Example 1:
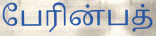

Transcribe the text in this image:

பேரின்பத்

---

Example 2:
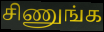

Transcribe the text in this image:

சிணுங்க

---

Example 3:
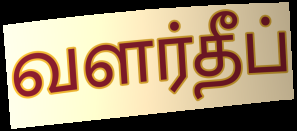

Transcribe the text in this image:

வளர்தீப்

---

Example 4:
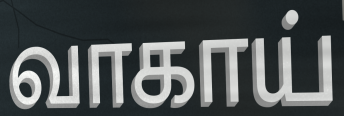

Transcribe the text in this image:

வாகாய்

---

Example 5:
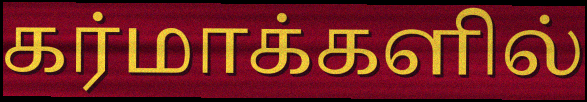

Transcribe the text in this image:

கர்மாக்களில்